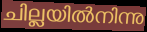
ചില്ലയിൽനിന്നു